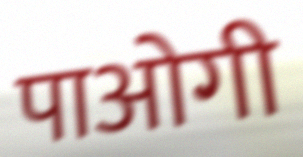
पाओगी